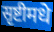
सृष्टीमधे